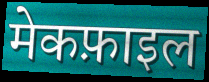
मेकफ़ाइल